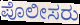
ಪೊಲೀಸರು